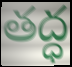
తద్ధ